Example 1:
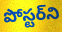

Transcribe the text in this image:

పోస్టర్‌ని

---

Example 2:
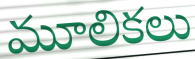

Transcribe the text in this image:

మూలికలు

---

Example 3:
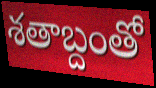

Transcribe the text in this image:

శతాబ్దంతో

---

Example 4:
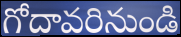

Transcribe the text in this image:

గోదావరినుండి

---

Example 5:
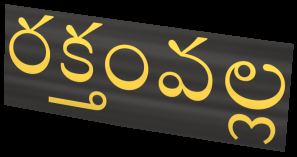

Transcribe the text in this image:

రక్తంవల్ల